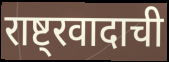
राष्ट्रवादाची